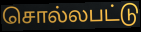
சொல்லபட்டு